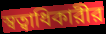
স্বত্বাধিকারীর